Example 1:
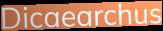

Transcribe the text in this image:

Dicaearchus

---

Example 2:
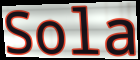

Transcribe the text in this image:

Sola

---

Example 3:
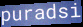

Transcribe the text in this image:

puradsi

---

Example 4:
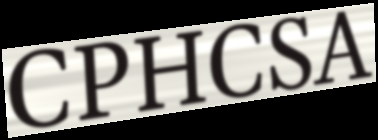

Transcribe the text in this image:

CPHCSA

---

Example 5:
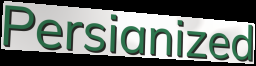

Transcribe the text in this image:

Persianized